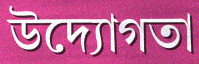
উদ্যোগতা